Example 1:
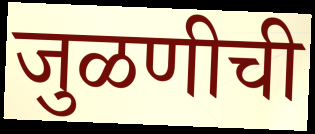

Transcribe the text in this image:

जुळणीची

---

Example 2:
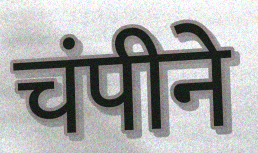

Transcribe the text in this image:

चंपीने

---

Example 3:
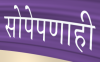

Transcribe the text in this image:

सोपेपणाही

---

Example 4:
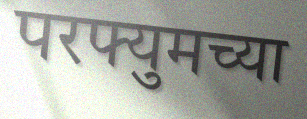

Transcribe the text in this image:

परफ्युमच्या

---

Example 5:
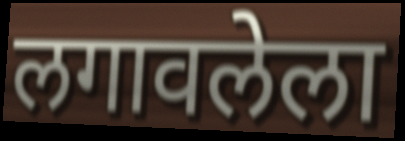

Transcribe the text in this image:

लगावलेला